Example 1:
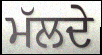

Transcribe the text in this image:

ਮੱਲਦੇ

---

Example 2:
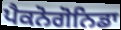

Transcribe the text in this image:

ਪੈਕਨੋਗੋਨਿਡਾ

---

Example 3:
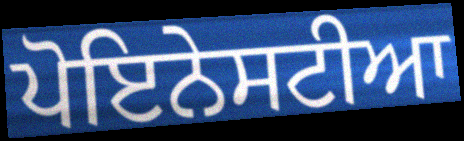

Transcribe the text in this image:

ਪੋਇਨੇਸਟੀਆ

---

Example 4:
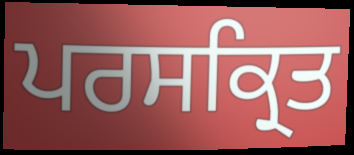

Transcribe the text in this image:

ਪਰਸਕ੍ਰਿਤ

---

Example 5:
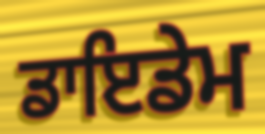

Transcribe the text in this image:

ਡਾਇਡੇਮ